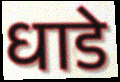
धाडे